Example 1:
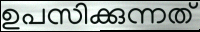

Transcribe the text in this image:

ഉപസിക്കുന്നത്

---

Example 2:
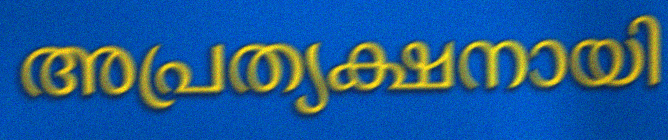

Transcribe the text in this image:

അപ്രത്യക്ഷനായി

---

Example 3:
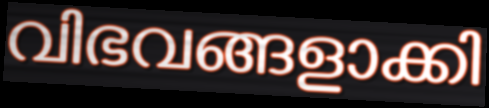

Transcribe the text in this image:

വിഭവങ്ങളാക്കി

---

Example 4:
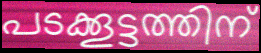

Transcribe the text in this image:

പടക്കൂട്ടത്തിന്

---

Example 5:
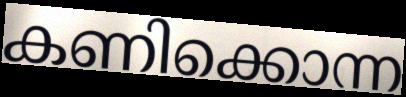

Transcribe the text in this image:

കണിക്കൊന്ന